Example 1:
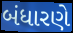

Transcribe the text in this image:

બંધારણે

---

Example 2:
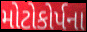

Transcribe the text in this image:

મોટોકોર્પના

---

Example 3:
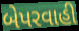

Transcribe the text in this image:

બેપરવાહી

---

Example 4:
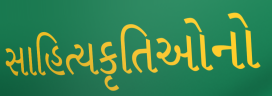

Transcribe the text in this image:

સાહિત્યકૃતિઓનો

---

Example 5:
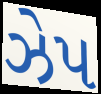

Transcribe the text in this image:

ઝેપ